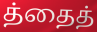
த்தைத்